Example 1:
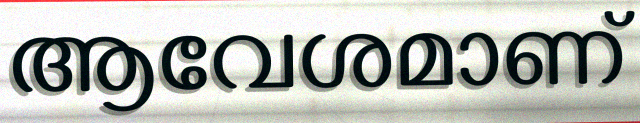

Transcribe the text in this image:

ആവേശമാണ്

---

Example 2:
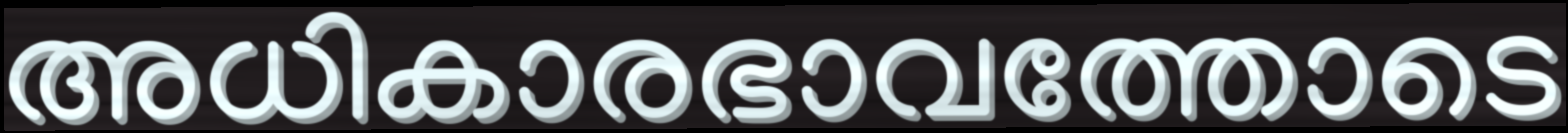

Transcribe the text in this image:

അധികാരഭാവത്തോടെ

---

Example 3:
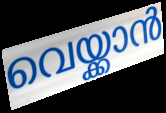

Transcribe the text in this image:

വെയ്ക്കാൻ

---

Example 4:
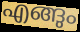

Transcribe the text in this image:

എങ്ങും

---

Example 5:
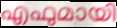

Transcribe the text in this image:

എഫുമായി